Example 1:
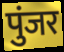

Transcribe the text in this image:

पुंजर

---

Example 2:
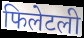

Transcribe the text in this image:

फिलेटली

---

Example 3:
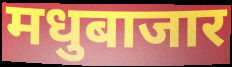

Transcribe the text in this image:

मधुबाजार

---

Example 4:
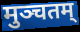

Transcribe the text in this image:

मुञ्चतम्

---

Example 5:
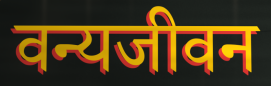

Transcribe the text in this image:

वन्यजीवन